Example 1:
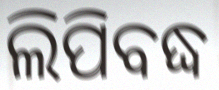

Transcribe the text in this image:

ଲିପିବଦ୍ଧ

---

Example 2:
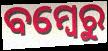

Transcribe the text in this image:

ବମ୍ବେରୁ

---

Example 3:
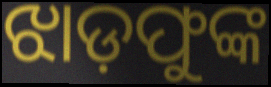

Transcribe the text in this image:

ଝାଡ଼ଫୁଙ୍କ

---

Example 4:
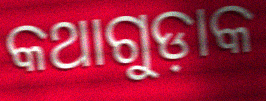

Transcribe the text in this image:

କଥାଗୁଡ଼ାକ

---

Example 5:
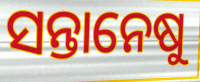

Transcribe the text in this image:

ସନ୍ତାନେଷୁ